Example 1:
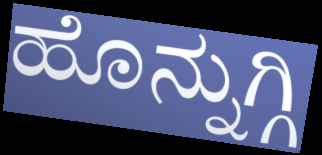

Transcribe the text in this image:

ಹೊನ್ನುಗ್ಗಿ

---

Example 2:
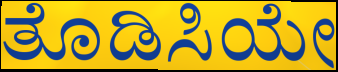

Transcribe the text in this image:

ತೊಡಿಸಿಯೇ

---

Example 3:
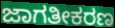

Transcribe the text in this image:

ಜಾಗತೀಕರಣ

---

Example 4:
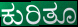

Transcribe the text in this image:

ಕುರಿತೂ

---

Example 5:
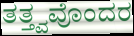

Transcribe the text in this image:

ತತ್ತ್ವವೊಂದರ